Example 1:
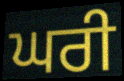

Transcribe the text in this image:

ਘਰੀ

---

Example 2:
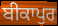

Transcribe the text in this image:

ਬੀਕਾਪੁਰ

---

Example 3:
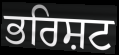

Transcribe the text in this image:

ਭਰਿਸ਼ਟ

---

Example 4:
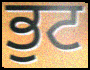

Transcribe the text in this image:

ਭੁਟ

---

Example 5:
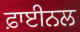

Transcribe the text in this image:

ਫ਼ਾਈਨਲ